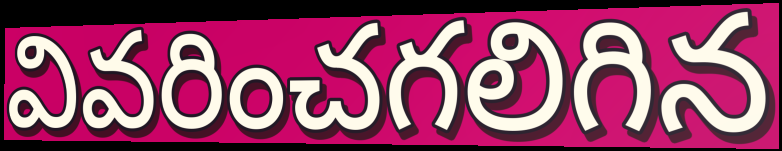
వివరించగలిగిన